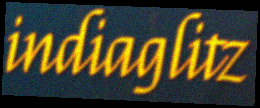
indiaglitz